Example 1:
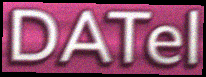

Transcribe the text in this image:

DATel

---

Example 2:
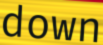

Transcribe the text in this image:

down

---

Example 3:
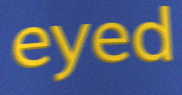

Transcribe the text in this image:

eyed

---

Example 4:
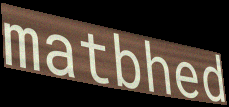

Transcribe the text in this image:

matbhed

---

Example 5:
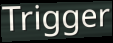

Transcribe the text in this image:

Trigger